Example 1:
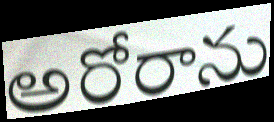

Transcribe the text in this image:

అరోరాను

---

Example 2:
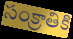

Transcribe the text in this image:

సంక్రాతికి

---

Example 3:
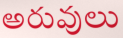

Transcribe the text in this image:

అరువులు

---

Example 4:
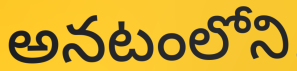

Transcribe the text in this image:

అనటంలోని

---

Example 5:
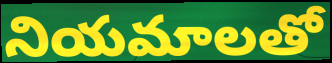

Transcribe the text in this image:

నియమాలతో